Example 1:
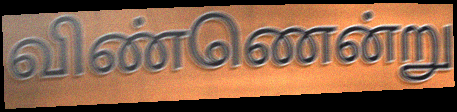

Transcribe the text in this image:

விண்ணென்று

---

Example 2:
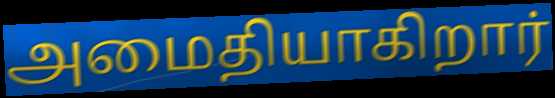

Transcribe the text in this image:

அமைதியாகிறார்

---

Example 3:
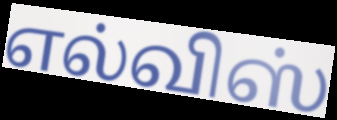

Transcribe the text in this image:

எல்விஸ்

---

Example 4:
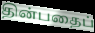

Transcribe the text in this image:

தின்பதைப்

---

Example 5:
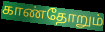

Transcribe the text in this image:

காண்தோறும்